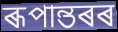
ৰূপান্তৰৰ